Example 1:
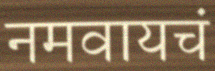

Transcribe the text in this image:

नमवायचं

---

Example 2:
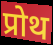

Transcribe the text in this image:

प्रोथ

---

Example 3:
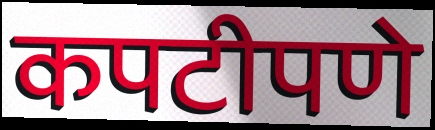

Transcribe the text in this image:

कपटीपणे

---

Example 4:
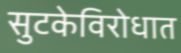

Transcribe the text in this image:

सुटकेविरोधात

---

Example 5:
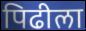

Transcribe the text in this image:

पिढीला